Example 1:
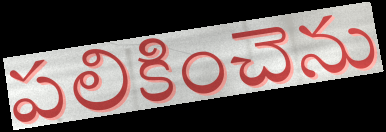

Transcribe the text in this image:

పలికించెను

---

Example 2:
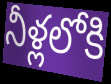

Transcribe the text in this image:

నీళ్లలోకి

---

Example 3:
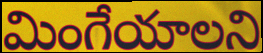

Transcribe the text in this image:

మింగేయాలని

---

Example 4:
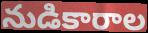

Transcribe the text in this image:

నుడికారాల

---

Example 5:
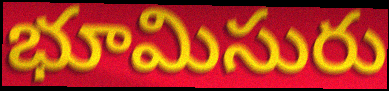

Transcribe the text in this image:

భూమిసురు